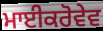
ਮਾਈਕਰੋਵੇਵ